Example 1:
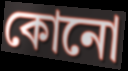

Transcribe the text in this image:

কোনো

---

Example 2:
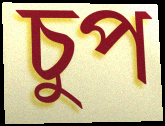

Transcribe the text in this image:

চুপ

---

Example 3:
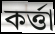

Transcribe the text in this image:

কৰ্ত্তা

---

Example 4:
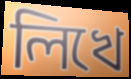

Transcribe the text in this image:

লিখে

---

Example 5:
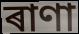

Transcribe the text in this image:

ৰাণা